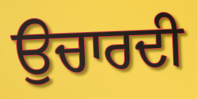
ਉਚਾਰਦੀ